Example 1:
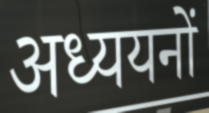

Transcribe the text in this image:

अध्ययनों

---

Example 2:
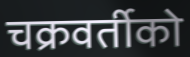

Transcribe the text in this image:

चक्रवर्तीको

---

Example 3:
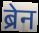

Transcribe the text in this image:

ब्रेन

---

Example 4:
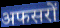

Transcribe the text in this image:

अफसरों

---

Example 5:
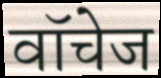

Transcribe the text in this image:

वॉचेज